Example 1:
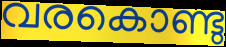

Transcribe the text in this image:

വരകൊണ്ടു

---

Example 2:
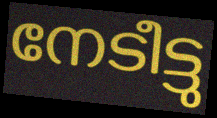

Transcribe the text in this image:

നേടീട്ടു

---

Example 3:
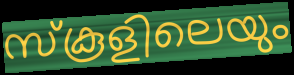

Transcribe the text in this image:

സ്കൂളിലെയും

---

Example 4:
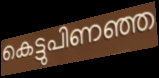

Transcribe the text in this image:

കെട്ടുപിണഞ്ഞ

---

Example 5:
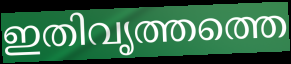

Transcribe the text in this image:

ഇതിവൃത്തത്തെ